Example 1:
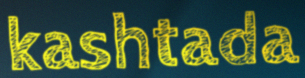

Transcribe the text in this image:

kashtada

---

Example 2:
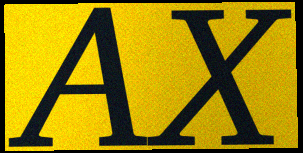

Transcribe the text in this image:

AX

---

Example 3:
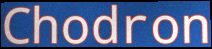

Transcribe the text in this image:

Chodron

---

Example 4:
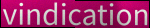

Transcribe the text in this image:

vindication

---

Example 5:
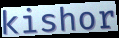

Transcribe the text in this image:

kishor